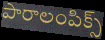
పారాలంపిక్స్